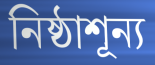
নিষ্ঠাশূন্য